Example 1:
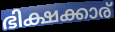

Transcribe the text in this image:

ഭിക്ഷക്കാര്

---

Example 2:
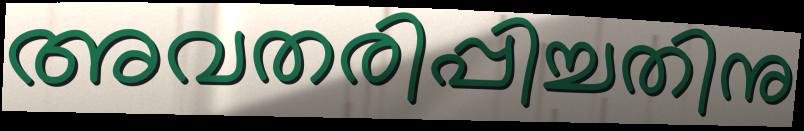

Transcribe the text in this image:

അവതരിപ്പിച്ചതിനു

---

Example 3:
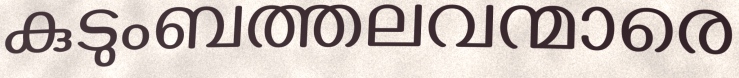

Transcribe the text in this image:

കുടുംബത്തലവന്മാരെ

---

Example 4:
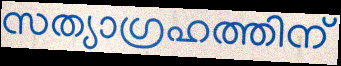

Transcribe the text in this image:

സത്യാഗ്രഹത്തിന്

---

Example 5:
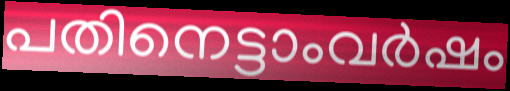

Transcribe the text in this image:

പതിനെട്ടാംവർഷം